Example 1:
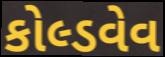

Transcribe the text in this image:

કોલ્ડવેવ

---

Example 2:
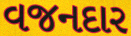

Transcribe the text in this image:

વજનદાર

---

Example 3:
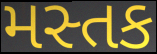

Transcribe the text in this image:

મસ્તક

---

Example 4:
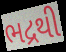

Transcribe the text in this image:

ભદ્રથી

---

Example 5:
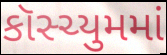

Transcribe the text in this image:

કૉસ્ચ્યુમમાં